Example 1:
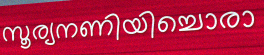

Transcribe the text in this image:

സൂര്യനണിയിച്ചൊരാ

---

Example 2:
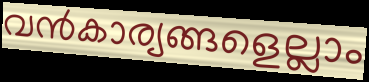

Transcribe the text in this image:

വൻകാര്യങ്ങളെല്ലാം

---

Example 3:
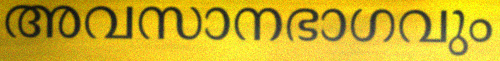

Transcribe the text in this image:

അവസാനഭാഗവും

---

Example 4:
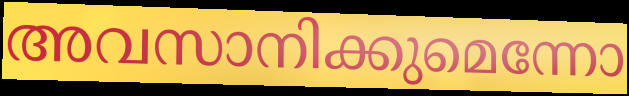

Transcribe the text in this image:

അവസാനിക്കുമെന്നോ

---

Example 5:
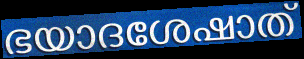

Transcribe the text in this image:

ഭയാദശേഷാത്